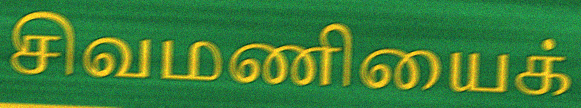
சிவமணியைக்